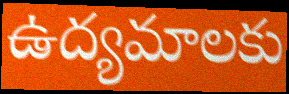
ఉద్యమాలకు